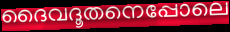
ദൈവദൂതനെപ്പോലെ